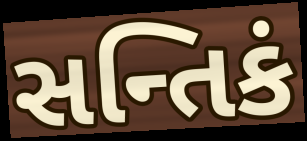
સન્તિકં